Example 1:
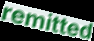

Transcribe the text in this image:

remitted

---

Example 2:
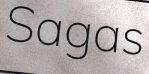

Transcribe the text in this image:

Sagas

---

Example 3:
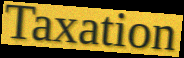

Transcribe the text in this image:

Taxation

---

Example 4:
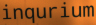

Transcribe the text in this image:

inqurium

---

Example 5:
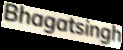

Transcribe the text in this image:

Bhagatsingh